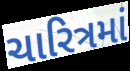
ચારિત્રમાં